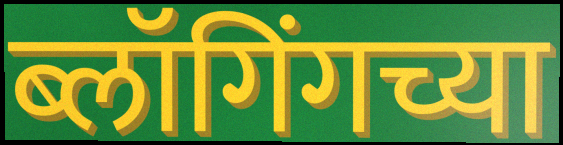
ब्लॉगिंगच्या